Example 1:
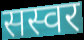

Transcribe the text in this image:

सस्वर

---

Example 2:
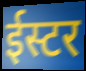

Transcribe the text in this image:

ईस्टर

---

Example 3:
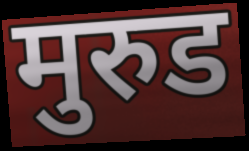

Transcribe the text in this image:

मुरुड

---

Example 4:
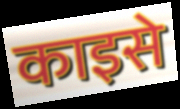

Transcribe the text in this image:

काइसे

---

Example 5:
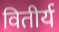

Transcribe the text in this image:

वितीर्य